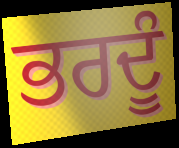
ਭਰਦੂੰ